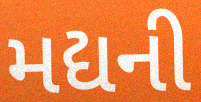
મદ્યની